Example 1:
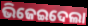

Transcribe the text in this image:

ଭିଜେଇଦେଲା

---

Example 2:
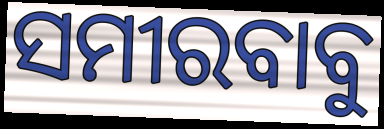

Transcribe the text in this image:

ସମୀରବାବୁ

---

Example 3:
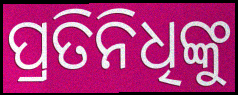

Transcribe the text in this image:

ପ୍ରତିନିଧିଙ୍କୁ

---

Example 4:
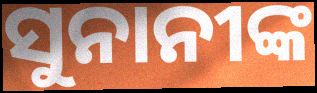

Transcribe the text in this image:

ସୁନାନୀଙ୍କ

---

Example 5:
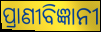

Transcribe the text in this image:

ପ୍ରାଣୀବିଜ୍ଞାନୀ